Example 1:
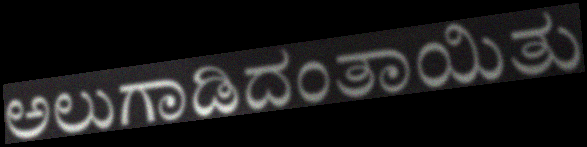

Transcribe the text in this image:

ಅಲುಗಾಡಿದಂತಾಯಿತು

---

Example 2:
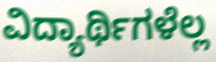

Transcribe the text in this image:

ವಿದ್ಯಾರ್ಥಿಗಳೆಲ್ಲ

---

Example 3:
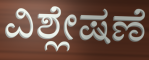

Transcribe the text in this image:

ವಿಶ್ಲೇಷಣೆ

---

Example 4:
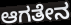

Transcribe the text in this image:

ಆಗತೇನ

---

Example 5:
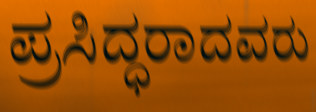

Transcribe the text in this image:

ಪ್ರಸಿದ್ಧರಾದವರು